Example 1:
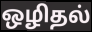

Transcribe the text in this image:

ஒழிதல்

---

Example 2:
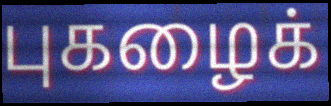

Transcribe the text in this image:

புகழைக்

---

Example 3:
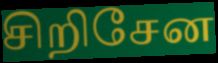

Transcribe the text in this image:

சிறிசேன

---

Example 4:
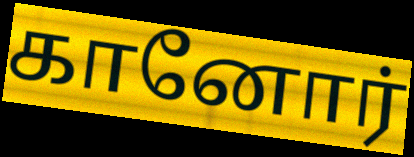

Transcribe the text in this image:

கானோர்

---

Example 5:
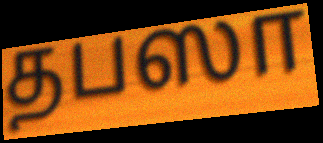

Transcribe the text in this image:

தபஸா